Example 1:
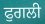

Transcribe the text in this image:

ਫੁਗਲੀ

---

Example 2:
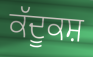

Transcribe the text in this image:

ਕੱਦੂਕਸ਼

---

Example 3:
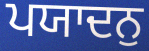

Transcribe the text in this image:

ਪਯਾਦਨੁ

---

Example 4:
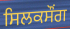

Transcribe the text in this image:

ਸਿਲਕਸੌਂਗ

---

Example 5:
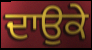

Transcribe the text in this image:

ਦਾਉਕੇ